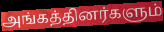
அங்கத்தினர்களும்